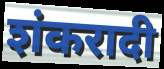
शंकरादी